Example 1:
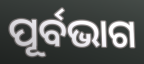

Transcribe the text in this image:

ପୂର୍ବଭାଗ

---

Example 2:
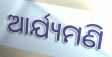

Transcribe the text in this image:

ଆର୍ଯ୍ୟମଣି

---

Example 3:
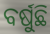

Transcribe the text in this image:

ବର୍ଷୁଛି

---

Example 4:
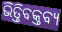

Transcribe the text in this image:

ଭିତ୍ତିବକ୍ତବ୍ୟ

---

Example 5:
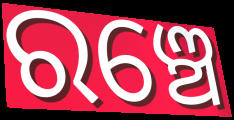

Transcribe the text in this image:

ରଞ୍ଚେ